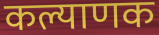
कल्याणक